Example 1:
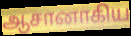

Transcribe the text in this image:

ஆசானாகிய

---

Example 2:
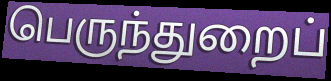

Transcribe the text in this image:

பெருந்துறைப்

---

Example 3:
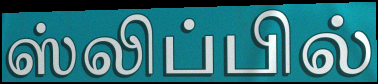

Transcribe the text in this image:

ஸ்லிப்பில்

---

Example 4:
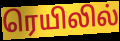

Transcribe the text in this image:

ரெயிலில்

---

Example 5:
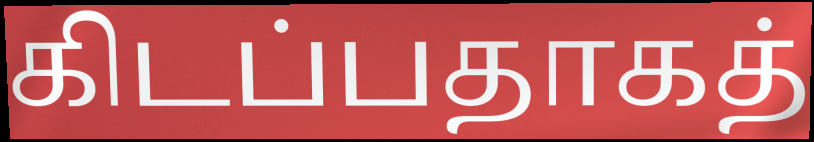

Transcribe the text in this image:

கிடப்பதாகத்